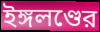
ইঙ্গলণ্ডের